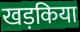
खड़किया